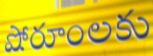
షోరూంలకు